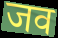
जव